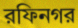
রফিনগর